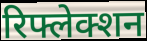
रिफ्लेक्शन